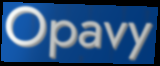
Opavy